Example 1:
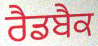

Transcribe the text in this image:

ਰੈਡਬੈਕ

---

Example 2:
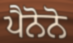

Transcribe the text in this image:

ਪੈਨੋਨੋ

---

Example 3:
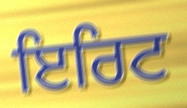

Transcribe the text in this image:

ਇਰਿਟ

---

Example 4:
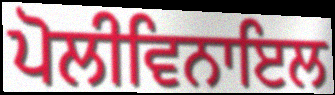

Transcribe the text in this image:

ਪੋਲੀਵਿਨਾਇਲ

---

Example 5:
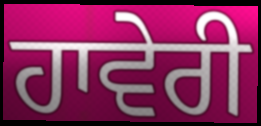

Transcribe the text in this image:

ਹਾਵੇਰੀ